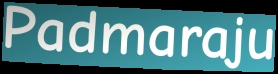
Padmaraju